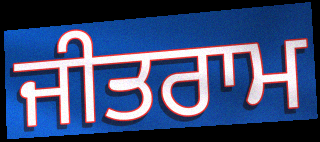
ਜੀਤਰਾਮ